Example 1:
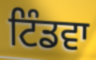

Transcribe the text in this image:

ਟਿੰਡਵਾ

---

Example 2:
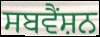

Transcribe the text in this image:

ਸਬਵੈਂਸ਼ਨ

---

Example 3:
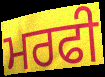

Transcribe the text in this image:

ਮਰਫੀ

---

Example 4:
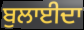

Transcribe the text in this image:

ਬੁਲਾਈਦਾ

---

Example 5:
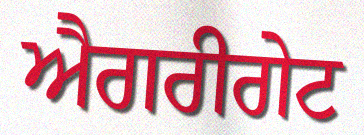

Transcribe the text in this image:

ਐਗਰੀਗੇਟ